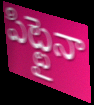
పిట్టైనా